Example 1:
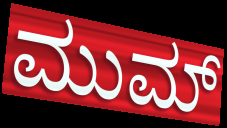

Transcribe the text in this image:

ಮುಮ್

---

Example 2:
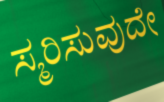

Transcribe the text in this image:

ಸ್ಮರಿಸುವುದೇ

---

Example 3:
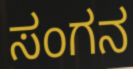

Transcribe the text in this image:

ಸಂಗನ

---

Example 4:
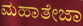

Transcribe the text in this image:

ಮಹಾತೇಜಾ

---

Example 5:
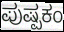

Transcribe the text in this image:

ಪುಷ್ಪಕಂ